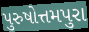
પુરુષોત્તમપુરા